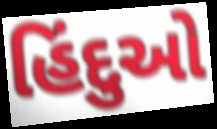
હિંદુઓ